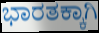
ಭಾರತಕ್ಕಾಗಿ